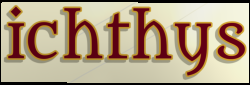
ichthys